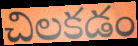
చిలకడం